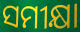
ସମୀକ୍ଷା